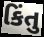
કિંતુ